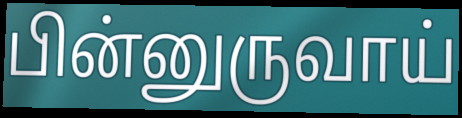
பின்னுருவாய்